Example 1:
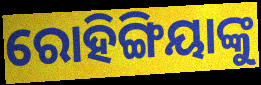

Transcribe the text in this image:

ରୋହିଙ୍ଗିୟାଙ୍କୁ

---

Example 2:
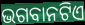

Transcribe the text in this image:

ଭଗବାନଟିଏ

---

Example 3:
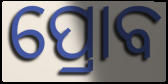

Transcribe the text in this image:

ପ୍ରୋବ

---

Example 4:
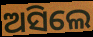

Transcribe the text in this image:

ଅସିଲେ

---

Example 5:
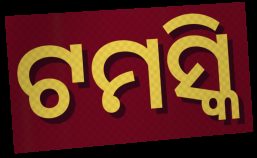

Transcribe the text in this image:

ଟମସ୍କି